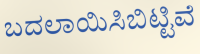
ಬದಲಾಯಿಸಿಬಿಟ್ಟಿವೆ